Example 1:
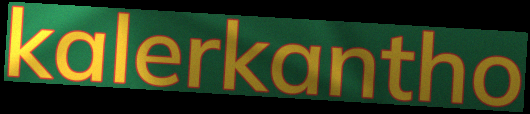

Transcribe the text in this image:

kalerkantho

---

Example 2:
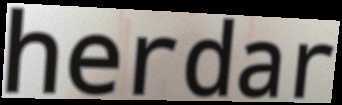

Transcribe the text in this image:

herdar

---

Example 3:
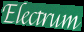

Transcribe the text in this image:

Electrum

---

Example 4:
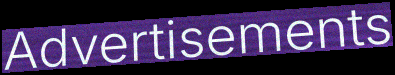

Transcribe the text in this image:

Advertisements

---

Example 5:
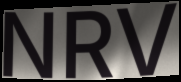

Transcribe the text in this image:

NRV